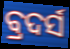
ବ୍ରଦର୍ସ